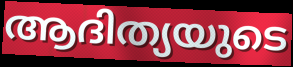
ആദിത്യയുടെ